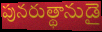
పునరుత్థానుడై